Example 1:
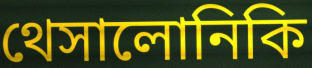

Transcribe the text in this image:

থেসালোনিকি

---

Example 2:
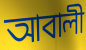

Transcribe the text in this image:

আবালী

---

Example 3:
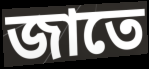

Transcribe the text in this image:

জাতে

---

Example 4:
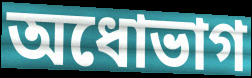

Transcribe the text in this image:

অধোভাগ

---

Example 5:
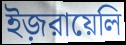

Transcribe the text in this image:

ইজ়রায়েলি